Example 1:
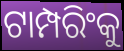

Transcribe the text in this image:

ଟାମ୍ପରିଂକୁ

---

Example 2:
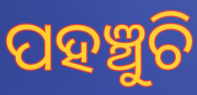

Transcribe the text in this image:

ପହଞ୍ଚୁଚି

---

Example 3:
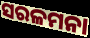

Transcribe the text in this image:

ସରଳମନା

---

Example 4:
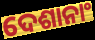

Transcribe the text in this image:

ଦେଶାନାଂ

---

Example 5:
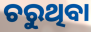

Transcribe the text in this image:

ଚରୁଥିବା